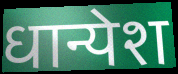
धान्येश